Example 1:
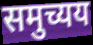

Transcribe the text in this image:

समुच्यय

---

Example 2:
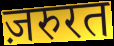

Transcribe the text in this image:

ज़रुरत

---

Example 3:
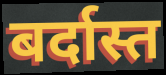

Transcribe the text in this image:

बर्दास्त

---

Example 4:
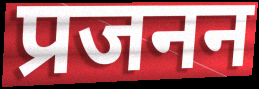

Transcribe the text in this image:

प्रजनन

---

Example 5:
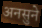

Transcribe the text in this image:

अनसुने